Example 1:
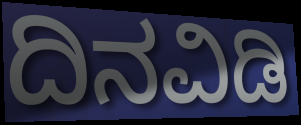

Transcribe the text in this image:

ದಿನವಿಡಿ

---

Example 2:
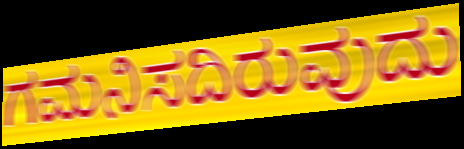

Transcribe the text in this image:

ಗಮನಿಸದಿರುವುದು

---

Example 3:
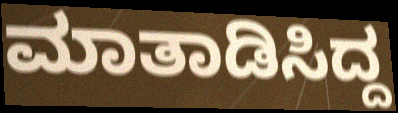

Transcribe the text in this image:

ಮಾತಾಡಿಸಿದ್ದ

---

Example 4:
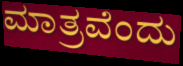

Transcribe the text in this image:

ಮಾತ್ರವೆಂದು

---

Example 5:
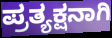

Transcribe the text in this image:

ಪ್ರತ್ಯಕ್ಷನಾಗಿ